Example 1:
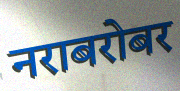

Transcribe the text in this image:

नराबरोबर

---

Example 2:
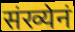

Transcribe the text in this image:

संख्येनं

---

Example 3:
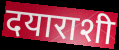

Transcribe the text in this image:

दयाराशी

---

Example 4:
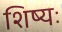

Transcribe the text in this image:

शिष्यः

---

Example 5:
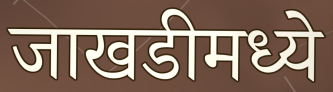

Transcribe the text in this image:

जाखडीमध्ये